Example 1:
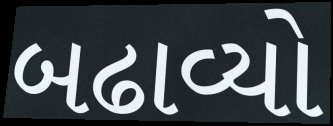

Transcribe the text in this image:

બઢાવ્યો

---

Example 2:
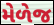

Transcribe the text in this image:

મેળેજ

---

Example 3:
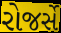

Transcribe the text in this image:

રોજર્સે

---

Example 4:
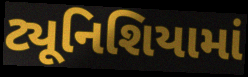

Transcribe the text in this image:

ટ્યૂનિશિયામાં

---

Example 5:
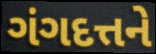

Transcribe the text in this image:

ગંગદત્તને